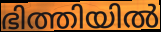
ഭിത്തിയിൽ